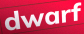
dwarf